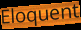
Eloquent